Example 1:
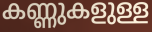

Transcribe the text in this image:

കണ്ണുകളുള്ള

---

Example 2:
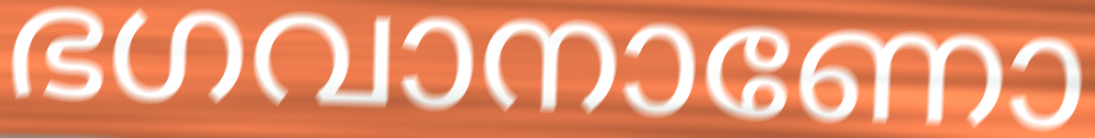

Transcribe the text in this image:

ഭഗവാനാണോ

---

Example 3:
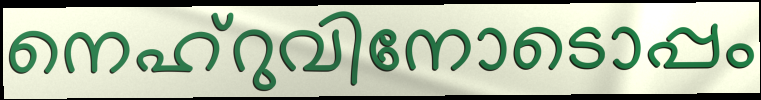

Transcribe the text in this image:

നെഹ്റുവിനോടൊപ്പം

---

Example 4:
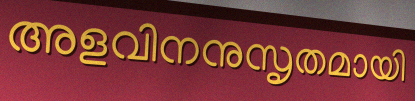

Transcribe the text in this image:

അളവിനനുസൃതമായി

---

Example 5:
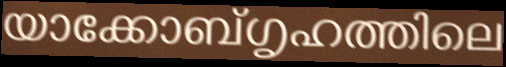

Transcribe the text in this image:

യാക്കോബ്ഗൃഹത്തിലെ